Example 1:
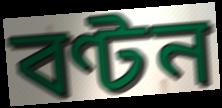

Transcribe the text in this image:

বণ্টন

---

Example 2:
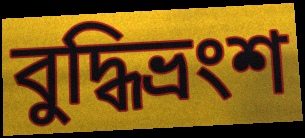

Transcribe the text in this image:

বুদ্ধিভ্রংশ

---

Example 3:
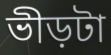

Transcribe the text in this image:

ভীড়টা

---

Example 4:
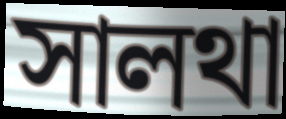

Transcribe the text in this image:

সালথা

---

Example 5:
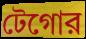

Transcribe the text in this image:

টেগোর